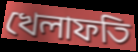
খেলাফতি